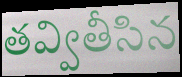
తవ్వితీసిన